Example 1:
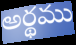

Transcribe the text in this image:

అర్థము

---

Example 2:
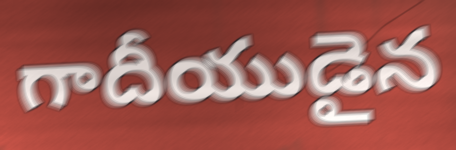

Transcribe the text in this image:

గాదీయుడైన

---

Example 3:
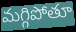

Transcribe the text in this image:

మగ్గిపోతూ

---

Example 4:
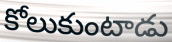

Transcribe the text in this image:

కోలుకుంటాడు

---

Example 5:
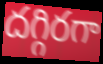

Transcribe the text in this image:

దగ్గిరగా